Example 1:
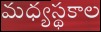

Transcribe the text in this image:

మధ్యస్థకాల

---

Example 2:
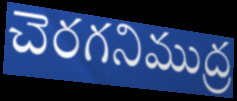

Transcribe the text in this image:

చెరగనిముద్ర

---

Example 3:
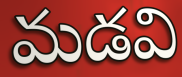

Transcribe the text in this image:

మడవి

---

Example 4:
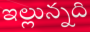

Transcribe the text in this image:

ఇల్లున్నది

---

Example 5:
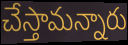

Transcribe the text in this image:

చేస్తామన్నారు